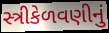
સ્ત્રીકેળવણીનું